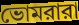
ভোমরারা